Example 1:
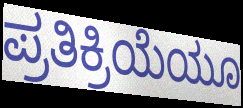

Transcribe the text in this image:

ಪ್ರತಿಕ್ರಿಯೆಯೂ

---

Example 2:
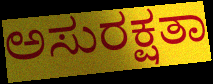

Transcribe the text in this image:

ಅಸುರಕ್ಷತಾ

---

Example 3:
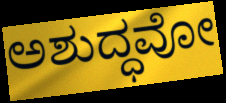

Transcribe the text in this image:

ಅಶುದ್ಧವೋ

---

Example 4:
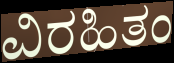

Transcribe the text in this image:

ವಿರಹಿತಂ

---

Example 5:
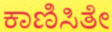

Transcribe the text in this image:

ಕಾಣಿಸಿತೇ